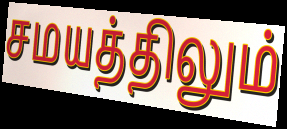
சமயத்திலும்